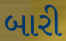
બારી